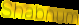
Shabnum